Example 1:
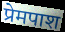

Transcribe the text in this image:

प्रेमपाश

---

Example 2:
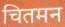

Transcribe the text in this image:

चितमन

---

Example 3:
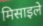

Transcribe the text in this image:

मिसाइले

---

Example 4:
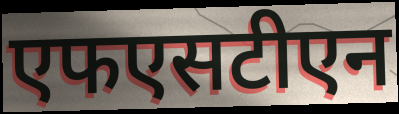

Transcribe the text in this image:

एफएसटीएन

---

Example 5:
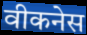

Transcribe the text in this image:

वीकनेस